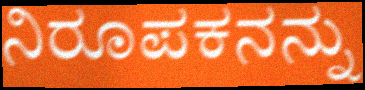
ನಿರೂಪಕನನ್ನು